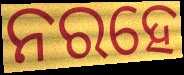
ନରହେ